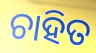
ଚାହିତ